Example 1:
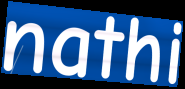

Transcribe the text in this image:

nathi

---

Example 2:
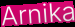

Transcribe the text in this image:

Arnika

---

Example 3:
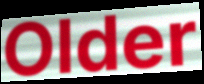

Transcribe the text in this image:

Older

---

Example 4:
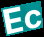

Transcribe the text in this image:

Ec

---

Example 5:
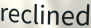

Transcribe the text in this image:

reclined